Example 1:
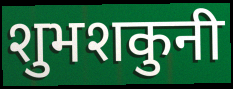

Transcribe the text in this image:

शुभशकुनी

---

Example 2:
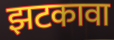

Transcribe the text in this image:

झटकावा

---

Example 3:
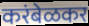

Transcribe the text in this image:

करंबेळकर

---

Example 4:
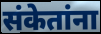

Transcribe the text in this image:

संकेतांना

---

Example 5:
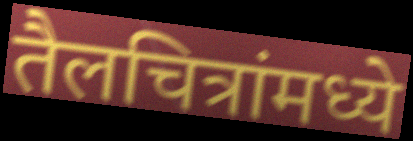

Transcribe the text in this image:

तैलचित्रांमध्ये